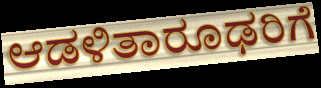
ಆಡಳಿತಾರೂಢರಿಗೆ